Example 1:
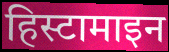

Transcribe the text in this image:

हिस्टामाइन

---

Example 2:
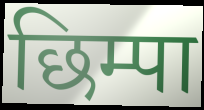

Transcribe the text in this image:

छिम्पा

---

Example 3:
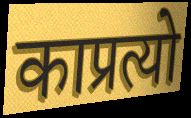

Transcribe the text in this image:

काप्रत्यो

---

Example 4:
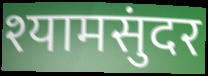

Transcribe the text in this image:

श्यामसुंदर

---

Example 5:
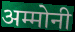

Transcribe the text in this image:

अम्मोनी